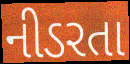
નીડરતા